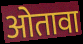
ओतावा